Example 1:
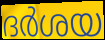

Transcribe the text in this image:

ദർശയ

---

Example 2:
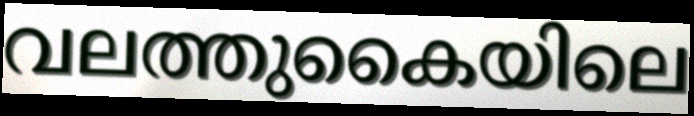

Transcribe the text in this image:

വലത്തുകൈയിലെ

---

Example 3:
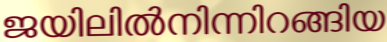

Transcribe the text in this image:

ജയിലിൽനിന്നിറങ്ങിയ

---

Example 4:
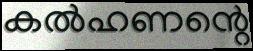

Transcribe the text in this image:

കൽഹണന്റെ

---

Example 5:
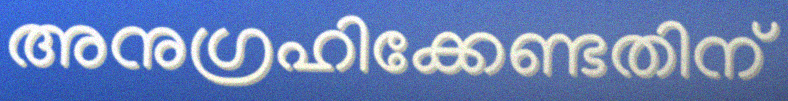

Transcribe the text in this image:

അനുഗ്രഹിക്കേണ്ടതിന്